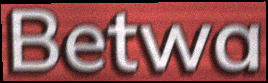
Betwa